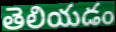
తెలియడం